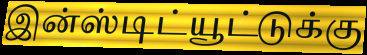
இன்ஸ்டிட்யூட்டுக்கு